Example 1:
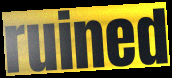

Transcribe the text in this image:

ruined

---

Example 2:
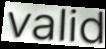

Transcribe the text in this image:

valid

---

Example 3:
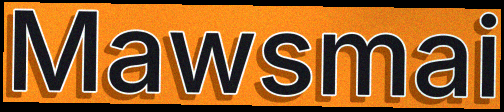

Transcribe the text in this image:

Mawsmai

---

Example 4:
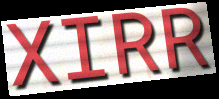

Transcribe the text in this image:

XIRR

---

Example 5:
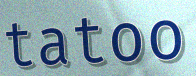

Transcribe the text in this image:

tatoo